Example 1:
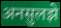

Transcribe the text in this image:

अनसुलझे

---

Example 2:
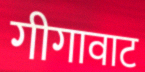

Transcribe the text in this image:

गीगावाट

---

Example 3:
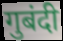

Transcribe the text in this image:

गुबंदी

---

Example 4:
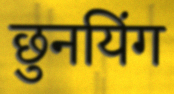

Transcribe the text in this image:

छुनयिंग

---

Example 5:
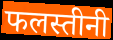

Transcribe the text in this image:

फलस्तीनी